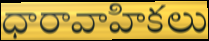
ధారావాహికలు